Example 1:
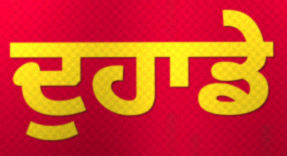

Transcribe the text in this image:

ਦੁਹਾਡੇ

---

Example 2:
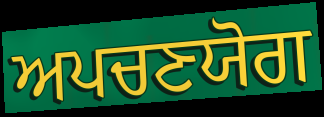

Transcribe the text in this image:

ਅਪਚਣਯੋਗ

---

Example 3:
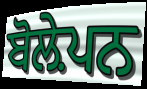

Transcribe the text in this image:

ਬੋਲ਼ੇਪਨ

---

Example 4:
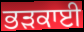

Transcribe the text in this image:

ਭੜਕਾਈ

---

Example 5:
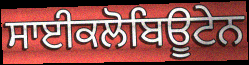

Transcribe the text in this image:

ਸਾਈਕਲੋਬਿਊਟੇਨ